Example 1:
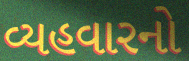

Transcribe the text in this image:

વ્યહવારનો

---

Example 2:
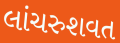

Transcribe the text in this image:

લાંચરુશવત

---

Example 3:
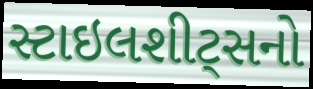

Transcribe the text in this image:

સ્ટાઇલશીટ્સનો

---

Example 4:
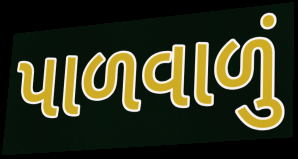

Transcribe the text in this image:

પાળવાળું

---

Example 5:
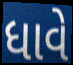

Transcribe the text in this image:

ધાવે